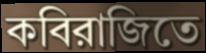
কবিরাজিতে